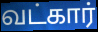
வட்கார்